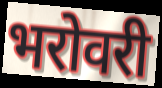
भरोवरी